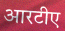
आरटीए